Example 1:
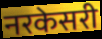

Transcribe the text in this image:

नरकेसरी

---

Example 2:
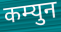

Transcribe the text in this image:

कम्युन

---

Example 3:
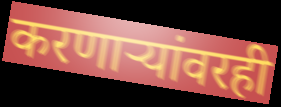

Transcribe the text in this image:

करणाऱ्यांवरही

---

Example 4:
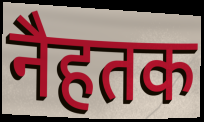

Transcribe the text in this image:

नैहतक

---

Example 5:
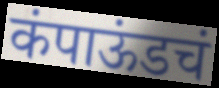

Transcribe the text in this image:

कंपाऊंडचं